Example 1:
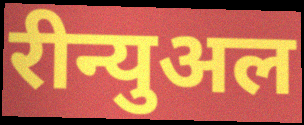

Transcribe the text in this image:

रीन्युअल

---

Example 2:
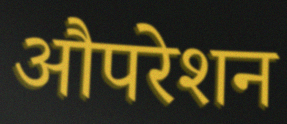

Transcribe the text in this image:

औपरेशन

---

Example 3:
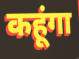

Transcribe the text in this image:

कहूंगा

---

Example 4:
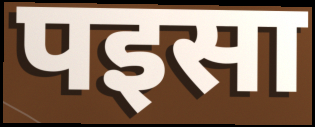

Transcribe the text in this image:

पइसा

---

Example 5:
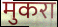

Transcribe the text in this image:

मुकरा